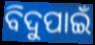
ବିଦୁପାଇଁ